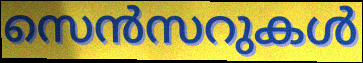
സെൻസറുകൾ